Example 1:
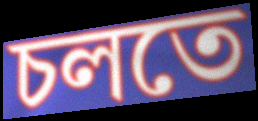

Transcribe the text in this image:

চলতে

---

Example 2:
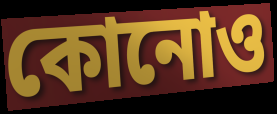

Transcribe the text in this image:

কোনোও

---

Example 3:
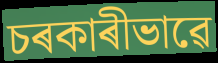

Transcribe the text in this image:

চৰকাৰীভাৱে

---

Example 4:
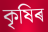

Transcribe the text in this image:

কৃষিৰ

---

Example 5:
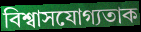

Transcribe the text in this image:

বিশ্বাসযোগ্যতাক